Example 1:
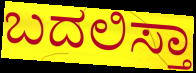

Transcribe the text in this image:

ಬದಲಿಸ್ತಾ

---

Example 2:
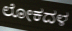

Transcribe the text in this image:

ಲೋಕದಳ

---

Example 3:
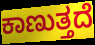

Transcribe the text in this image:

ಕಾಣುತ್ತದೆ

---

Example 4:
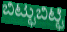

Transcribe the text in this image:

ಬಿಟ್ಟುಬಿಟ್ಟೆ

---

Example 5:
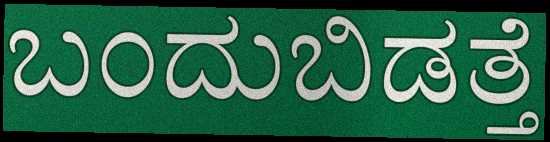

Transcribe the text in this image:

ಬಂದುಬಿಡತ್ತೆ